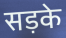
सड़के